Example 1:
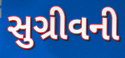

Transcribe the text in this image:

સુગ્રીવની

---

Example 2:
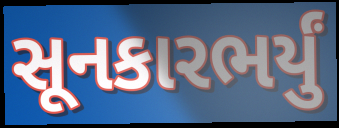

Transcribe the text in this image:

સૂનકારભર્યું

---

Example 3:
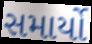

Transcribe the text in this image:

સમાર્યો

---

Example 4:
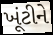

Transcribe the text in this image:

ખૂંટીને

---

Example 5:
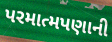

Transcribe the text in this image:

પરમાત્મપણાની